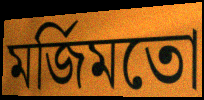
মর্জিমতো